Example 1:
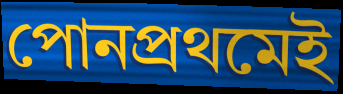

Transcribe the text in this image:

পোনপ্ৰথমেই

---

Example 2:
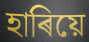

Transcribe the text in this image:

হাৰিয়ে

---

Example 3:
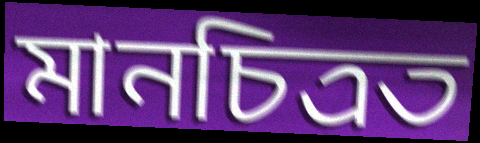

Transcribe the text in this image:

মানচিত্ৰত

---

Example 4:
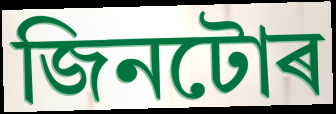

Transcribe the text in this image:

জিনটোৰ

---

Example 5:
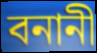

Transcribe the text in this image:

বনানী